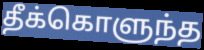
தீக்கொளுந்த